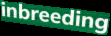
inbreeding